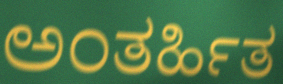
ಅಂತರ್ಹಿತ